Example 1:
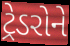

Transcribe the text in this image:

ટ્રેડરોને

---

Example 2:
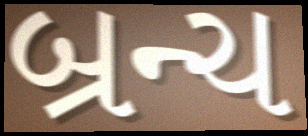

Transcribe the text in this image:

બ્રન્ચ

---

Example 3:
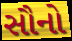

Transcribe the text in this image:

સૌનો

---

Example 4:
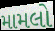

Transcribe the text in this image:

મામલો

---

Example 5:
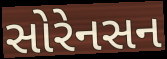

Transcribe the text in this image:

સોરેનસન